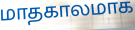
மாதகாலமாக